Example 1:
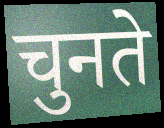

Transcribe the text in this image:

चुनते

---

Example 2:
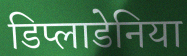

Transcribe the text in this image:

डिप्लाडेनिया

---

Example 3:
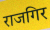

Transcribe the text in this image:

राजगिर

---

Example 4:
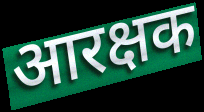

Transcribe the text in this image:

आरक्षक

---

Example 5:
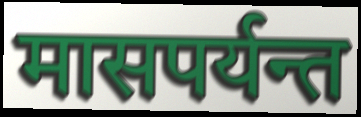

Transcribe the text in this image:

मासपर्यन्त